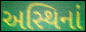
અસ્થિનાં